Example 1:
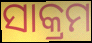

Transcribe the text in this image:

ସାକ୍ରମ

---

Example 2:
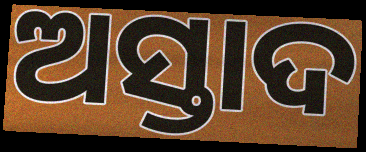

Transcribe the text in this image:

ଅସ୍ତାଦ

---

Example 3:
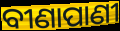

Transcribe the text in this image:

ବୀଣାପାଣୀ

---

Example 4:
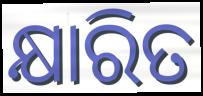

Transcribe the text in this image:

କ୍ଷାରିତ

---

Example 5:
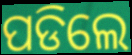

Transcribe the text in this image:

ପଡିଲେ